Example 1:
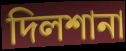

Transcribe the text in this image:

দিলশানা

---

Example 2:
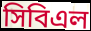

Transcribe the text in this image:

সিবিএল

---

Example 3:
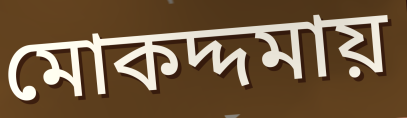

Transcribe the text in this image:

মোকদ্দমায়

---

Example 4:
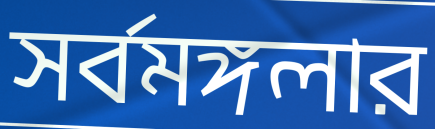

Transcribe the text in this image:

সর্বমঙ্গলার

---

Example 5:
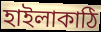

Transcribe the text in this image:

হাইলাকাঠি